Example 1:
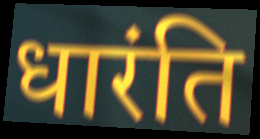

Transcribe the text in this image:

धारंति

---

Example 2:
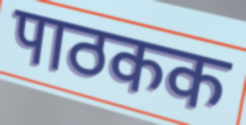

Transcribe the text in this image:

पाठकक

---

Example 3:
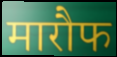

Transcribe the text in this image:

मारौफ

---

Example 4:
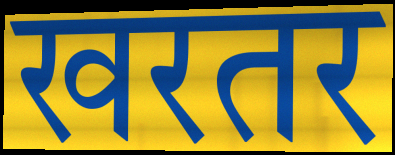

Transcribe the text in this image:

खरतर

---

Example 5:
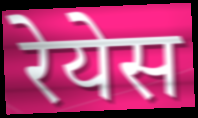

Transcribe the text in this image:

रेयेस